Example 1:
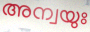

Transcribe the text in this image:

അന്വയുഃ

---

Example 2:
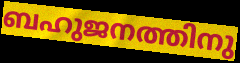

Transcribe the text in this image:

ബഹുജനത്തിനു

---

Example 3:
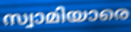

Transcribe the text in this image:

സ്വാമിയാരെ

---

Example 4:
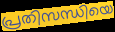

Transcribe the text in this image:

പ്രതിസന്ധിയെ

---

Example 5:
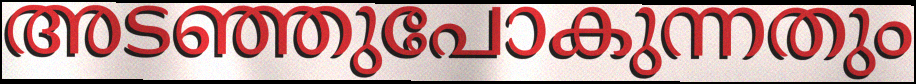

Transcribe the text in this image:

അടഞ്ഞുപോകുന്നതും